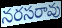
నరసరావు